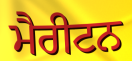
ਮੈਰੀਟਨ